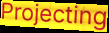
Projecting